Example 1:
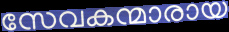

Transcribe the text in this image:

സേവകന്മാരായ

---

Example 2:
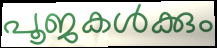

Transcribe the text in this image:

പൂജകൾക്കും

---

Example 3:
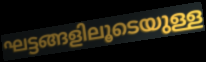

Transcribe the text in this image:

ഘട്ടങ്ങളിലൂടെയുള്ള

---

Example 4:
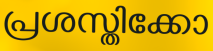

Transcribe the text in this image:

പ്രശസ്തിക്കോ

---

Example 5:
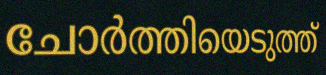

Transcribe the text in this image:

ചോർത്തിയെടുത്ത്